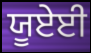
ਯੂਏਈ